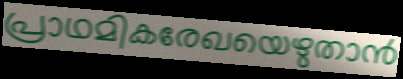
പ്രാഥമികരേഖയെഴുതാൻ